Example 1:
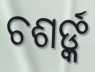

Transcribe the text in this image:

ଚଶର୍ଙ୍କ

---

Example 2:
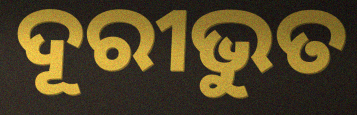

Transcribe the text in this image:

ଦୂରୀଭୁତ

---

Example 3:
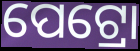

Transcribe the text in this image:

ପେଟ୍ରୋ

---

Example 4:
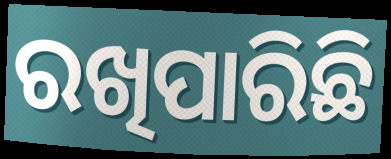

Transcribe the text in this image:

ରଖିପାରିଛି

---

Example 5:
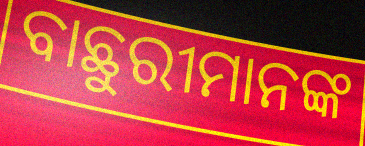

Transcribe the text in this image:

ବାଛୁରୀମାନଙ୍କ